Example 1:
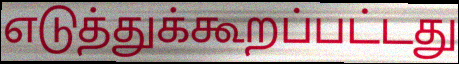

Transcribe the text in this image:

எடுத்துக்கூறப்பட்டது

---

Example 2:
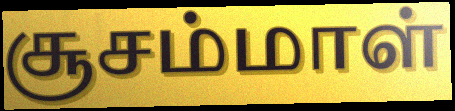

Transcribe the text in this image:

சூசம்மாள்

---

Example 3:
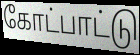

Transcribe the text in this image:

கோட்பாட்டு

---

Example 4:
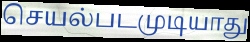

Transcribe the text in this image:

செயல்படமுடியாது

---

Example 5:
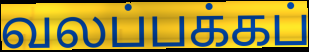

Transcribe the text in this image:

வலப்பக்கப்